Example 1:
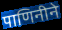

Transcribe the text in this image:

पाणिनीने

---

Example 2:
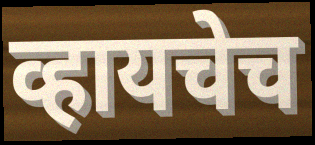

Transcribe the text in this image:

व्हायचेच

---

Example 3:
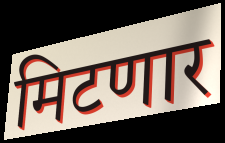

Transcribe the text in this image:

मिटणार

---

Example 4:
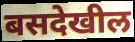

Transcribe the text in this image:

बसदेखील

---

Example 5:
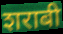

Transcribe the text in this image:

शराबी